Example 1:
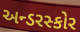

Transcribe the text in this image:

અન્ડરસ્કોર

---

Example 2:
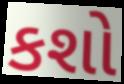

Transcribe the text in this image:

કશો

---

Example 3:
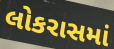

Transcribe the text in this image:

લોકરાસમાં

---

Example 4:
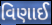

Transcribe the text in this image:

વિણાઈ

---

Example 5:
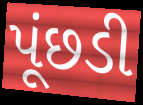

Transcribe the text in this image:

પૂંછડી